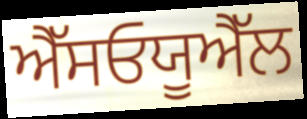
ਐੱਸਓਯੂਐੱਲ